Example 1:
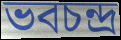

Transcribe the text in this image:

ভবচন্দ্র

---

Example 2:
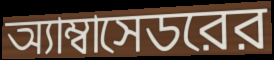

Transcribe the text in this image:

অ্যাম্বাসেডরের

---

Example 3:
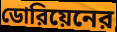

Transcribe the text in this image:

ডোরিয়েনের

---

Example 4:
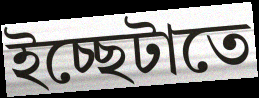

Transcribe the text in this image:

ইচ্ছেটাতে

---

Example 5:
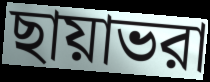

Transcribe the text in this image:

ছায়াভরা